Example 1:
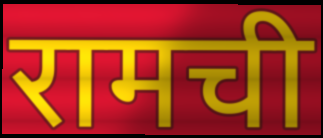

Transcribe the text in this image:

रामची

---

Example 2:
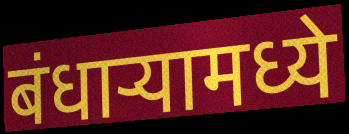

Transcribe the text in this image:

बंधाऱ्यामध्ये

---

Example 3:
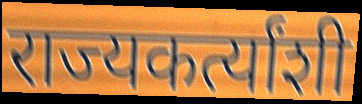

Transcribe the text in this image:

राज्यकर्त्यांशी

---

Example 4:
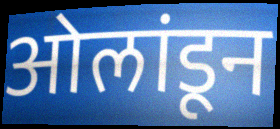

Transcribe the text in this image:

ओलांडून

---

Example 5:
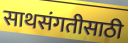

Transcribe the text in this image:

साथसंगतीसाठी